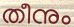
തീനും